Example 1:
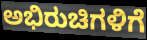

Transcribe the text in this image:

ಅಭಿರುಚಿಗಳಿಗೆ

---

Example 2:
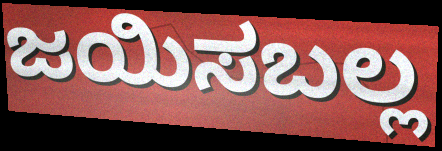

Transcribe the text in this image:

ಜಯಿಸಬಲ್ಲ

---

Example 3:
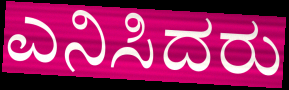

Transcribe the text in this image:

ಎನಿಸಿದರು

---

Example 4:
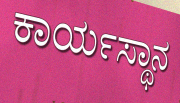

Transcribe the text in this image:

ಕಾರ್ಯಸ್ಥಾನ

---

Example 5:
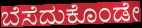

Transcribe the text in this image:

ಬೆಸೆದುಕೊಂಡೇ